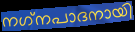
നഗ്‌നപാദനായി